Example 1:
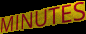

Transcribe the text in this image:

MINUTES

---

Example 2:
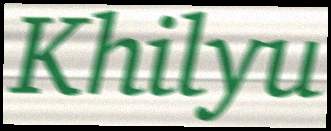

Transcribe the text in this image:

Khilyu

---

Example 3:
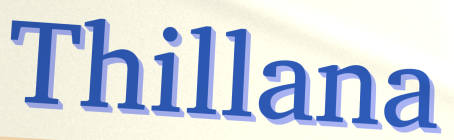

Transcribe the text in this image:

Thillana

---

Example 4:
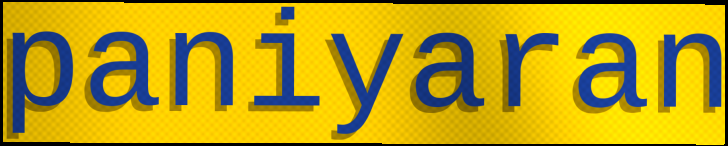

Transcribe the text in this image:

paniyaran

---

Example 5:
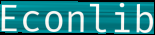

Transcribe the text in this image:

Econlib